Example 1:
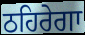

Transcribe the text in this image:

ਠਹਿਰੇਗਾ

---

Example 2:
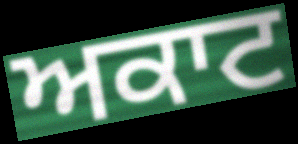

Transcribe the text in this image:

ਅਕਾਟ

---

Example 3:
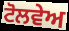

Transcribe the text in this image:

ਟੋਲਵੇਅ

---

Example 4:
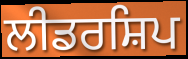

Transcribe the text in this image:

ਲੀਡਰਸ਼ਿਪ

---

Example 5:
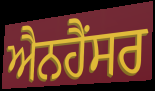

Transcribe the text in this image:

ਐਨਹੈਂਸਰ